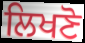
ਲਿਖਣੋ